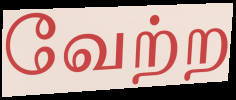
வேற்ற